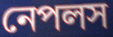
নেপলস